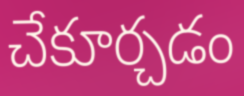
చేకూర్చడం